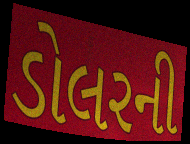
ડોલરની